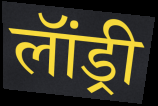
लॉंड्री